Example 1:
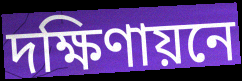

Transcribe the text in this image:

দক্ষিণায়নে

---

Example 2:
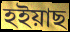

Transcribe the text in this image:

হইয়াছ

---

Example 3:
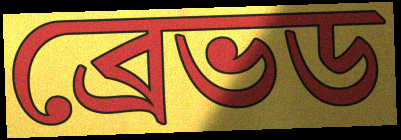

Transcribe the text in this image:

ব্রেভড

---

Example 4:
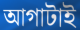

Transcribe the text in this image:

আগাটাই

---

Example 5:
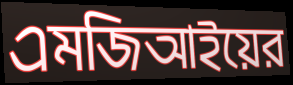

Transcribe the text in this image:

এমজিআইয়ের